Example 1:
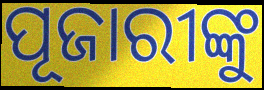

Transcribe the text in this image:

ପୂଜାରୀଙ୍କୁ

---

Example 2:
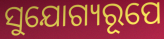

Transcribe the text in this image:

ସୁଯୋଗ୍ୟରୂପେ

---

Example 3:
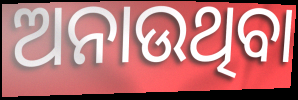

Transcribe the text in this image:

ଅନାଉଥିବା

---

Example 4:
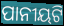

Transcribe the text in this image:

ପାନୀୟଟି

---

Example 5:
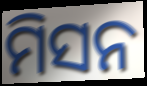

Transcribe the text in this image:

ମିସନ